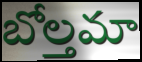
బోల్తమా